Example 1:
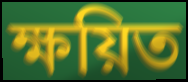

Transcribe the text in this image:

ক্ষয়িত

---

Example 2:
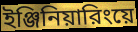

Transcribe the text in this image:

ইঞ্জিনিয়ারিংয়ে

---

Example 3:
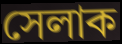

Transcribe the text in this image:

সেলাক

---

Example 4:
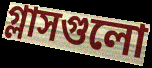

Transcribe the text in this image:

গ্লাসগুলো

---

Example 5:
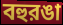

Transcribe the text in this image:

বহুরঙা